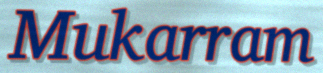
Mukarram